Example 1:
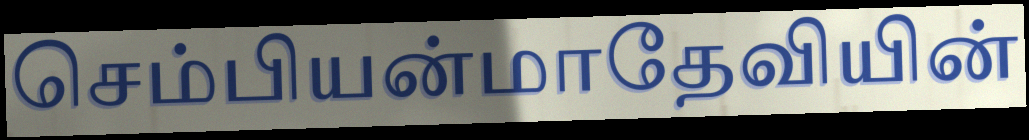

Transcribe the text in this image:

செம்பியன்மாதேவியின்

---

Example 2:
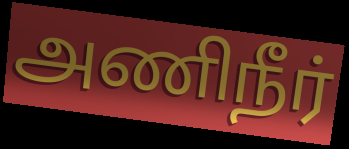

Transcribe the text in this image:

அணிநீர்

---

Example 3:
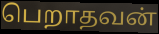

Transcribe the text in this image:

பெறாதவன்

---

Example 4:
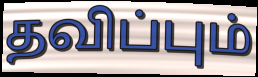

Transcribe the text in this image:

தவிப்பும்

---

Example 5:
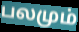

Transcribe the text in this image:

பலமும்